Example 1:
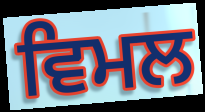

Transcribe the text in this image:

ਵਿਮਲ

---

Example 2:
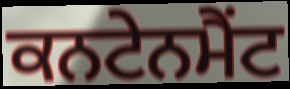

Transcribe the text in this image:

ਕਨਟੇਨਮੈਂਟ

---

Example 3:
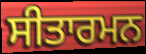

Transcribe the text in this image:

ਸੀਤਾਰਮਨ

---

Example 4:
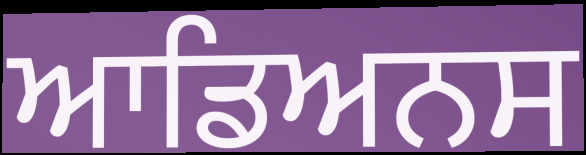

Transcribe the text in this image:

ਆਡਿਅਨਸ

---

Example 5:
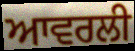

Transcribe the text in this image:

ਆਵਰਲੀ